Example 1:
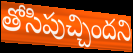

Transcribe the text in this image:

తోసిపుచ్చిందని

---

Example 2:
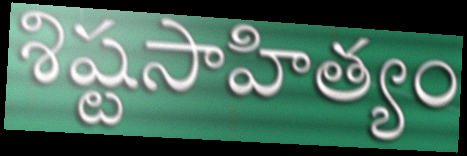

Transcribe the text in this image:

శిష్టసాహిత్యం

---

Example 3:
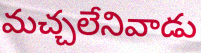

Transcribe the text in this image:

మచ్చలేనివాడు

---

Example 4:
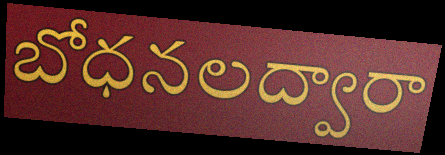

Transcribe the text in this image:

బోధనలద్వారా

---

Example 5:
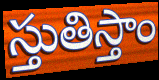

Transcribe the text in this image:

స్తుతిస్తాం